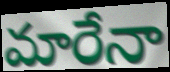
మారేనా